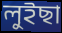
লুইছা